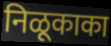
निळूकाका